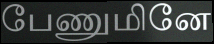
பேணுமினே